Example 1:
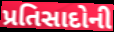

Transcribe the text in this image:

પ્રતિસાદોની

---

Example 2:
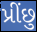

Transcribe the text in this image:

પ્રીંછુ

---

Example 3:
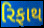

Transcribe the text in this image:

રિફાથ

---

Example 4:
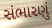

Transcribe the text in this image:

સંભારણું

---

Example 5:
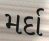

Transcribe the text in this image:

મર્દા